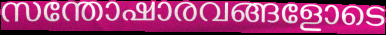
സന്തോഷാരവങ്ങളോടെ